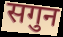
सगुन